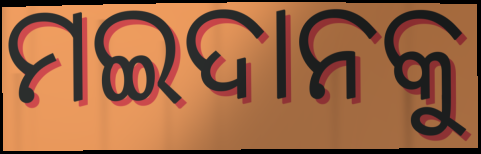
ମଇଦାନକୁ